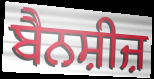
ਬੈਨਸ਼ੀਜ਼